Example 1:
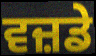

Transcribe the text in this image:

ਵਜ਼ਡੇ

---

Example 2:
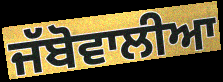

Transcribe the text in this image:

ਜੱਬੋਵਾਲੀਆ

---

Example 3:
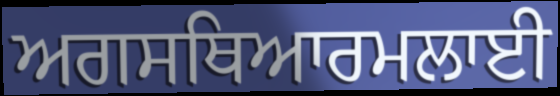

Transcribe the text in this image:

ਅਗਸਥਿਆਰਮਲਾਈ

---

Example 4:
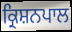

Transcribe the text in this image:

ਕ੍ਰਿਸ਼ਨਪਾਲ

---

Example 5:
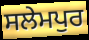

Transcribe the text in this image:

ਸਲੇਮਪੁਰ